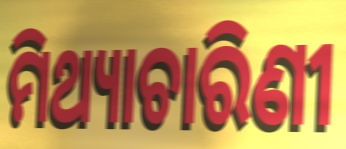
ମିଥ୍ୟାଚାରିଣୀ